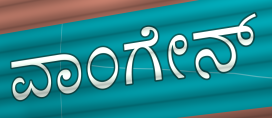
ವಾಂಗೇನ್